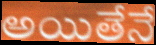
అయితేనే